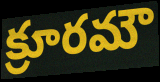
క్రూరమౌ